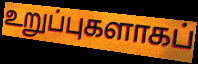
உறுப்புகளாகப்